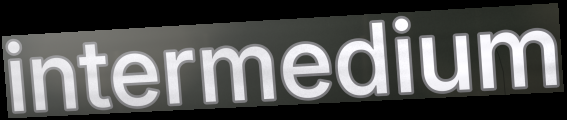
intermedium